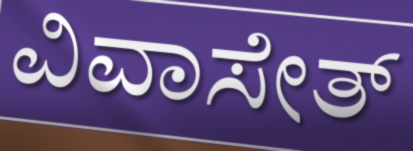
ವಿವಾಸೇತ್